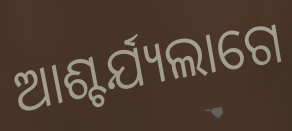
ଆଶ୍ଚର୍ଯ୍ୟଲାଗେ